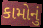
કામોનું